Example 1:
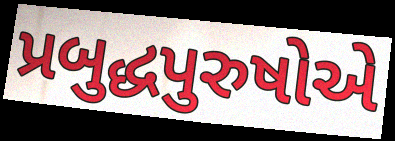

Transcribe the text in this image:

પ્રબુદ્ધપુરુષોએ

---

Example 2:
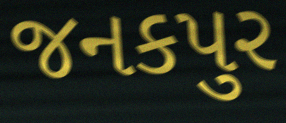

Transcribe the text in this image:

જનકપુર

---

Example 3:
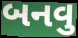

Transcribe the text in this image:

બનવુ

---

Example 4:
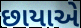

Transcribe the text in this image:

છાયાએ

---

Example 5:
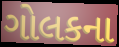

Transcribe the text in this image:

ગોલકના